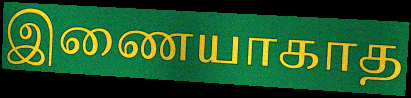
இணையாகாத